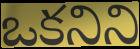
ఒకనిని